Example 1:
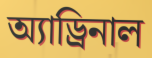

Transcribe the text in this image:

অ্যাড্রিনাল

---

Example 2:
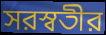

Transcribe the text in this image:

সরস্বতীর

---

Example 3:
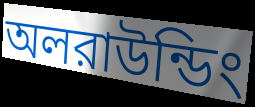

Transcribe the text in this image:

অলরাউন্ডিং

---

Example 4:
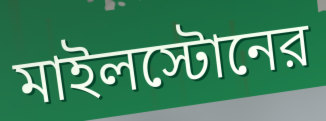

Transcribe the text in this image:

মাইলস্টোনের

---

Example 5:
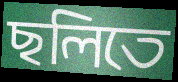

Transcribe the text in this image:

ছলিতে